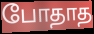
போதாத